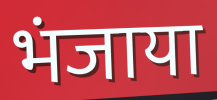
भंजाया